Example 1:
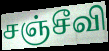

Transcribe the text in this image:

சஞ்சீவி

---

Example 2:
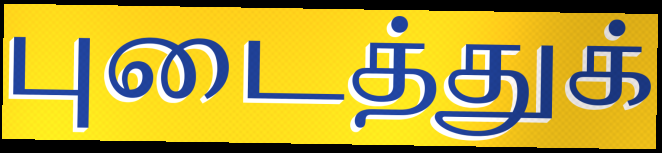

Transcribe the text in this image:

புடைத்துக்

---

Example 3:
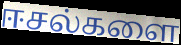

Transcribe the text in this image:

ஈசல்களை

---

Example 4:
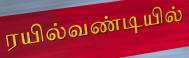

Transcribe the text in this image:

ரயில்வண்டியில்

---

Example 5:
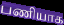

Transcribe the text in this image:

பணியாக